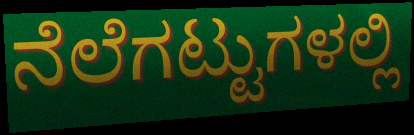
ನೆಲೆಗಟ್ಟುಗಳಲ್ಲಿ